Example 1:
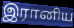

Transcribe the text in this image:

இரானிய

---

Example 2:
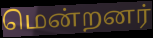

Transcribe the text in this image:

மென்றனர்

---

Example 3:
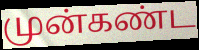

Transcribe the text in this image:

முன்கண்ட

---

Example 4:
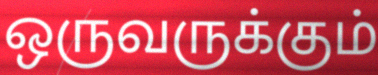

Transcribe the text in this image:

ஒருவருக்கும்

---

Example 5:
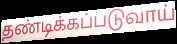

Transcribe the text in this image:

தண்டிக்கப்படுவாய்